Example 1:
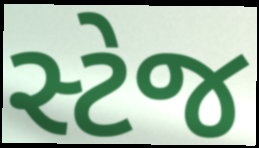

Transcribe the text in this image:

સ્ટેજ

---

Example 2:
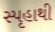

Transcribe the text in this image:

સ્પૃહાથી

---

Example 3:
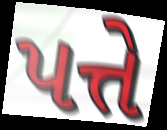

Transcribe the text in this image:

પત્તે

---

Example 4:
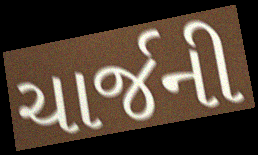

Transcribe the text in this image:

ચાર્જની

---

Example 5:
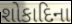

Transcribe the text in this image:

શોકાદિના